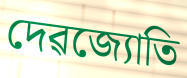
দেৱজ্যোতি